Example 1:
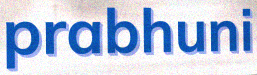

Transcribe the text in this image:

prabhuni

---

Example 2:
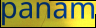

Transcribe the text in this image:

panam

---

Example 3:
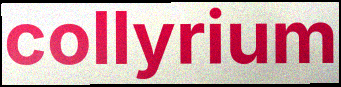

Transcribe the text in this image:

collyrium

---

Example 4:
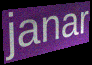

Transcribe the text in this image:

janar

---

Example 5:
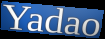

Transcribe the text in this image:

Yadao